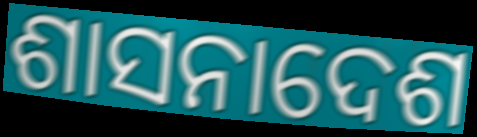
ଶାସନାଦେଶ